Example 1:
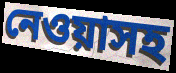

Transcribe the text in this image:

নেওয়াসহ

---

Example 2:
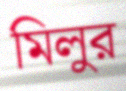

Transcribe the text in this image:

মিলুর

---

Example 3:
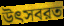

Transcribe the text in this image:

উৎসবরত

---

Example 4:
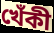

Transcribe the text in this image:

খেঁকী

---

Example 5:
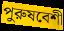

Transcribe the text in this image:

পুরুষবেশী